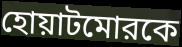
হোয়াটমোরকে